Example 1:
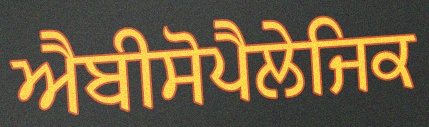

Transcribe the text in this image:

ਐਬੀਸੋਪੈਲੇਜਿਕ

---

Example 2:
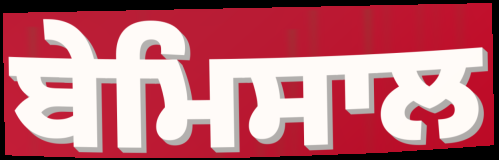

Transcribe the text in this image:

ਬੇਮਿਸਾਲ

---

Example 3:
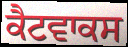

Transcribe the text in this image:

ਕੈਟਵਾਕਸ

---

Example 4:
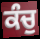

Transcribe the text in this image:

ਕੰਚੁ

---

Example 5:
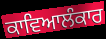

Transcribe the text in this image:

ਕਾਵਿਆਲੰਕਾਰ